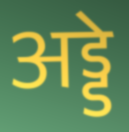
अड्डे